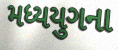
મધ્યયુગના